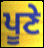
ਪੂਣੇ